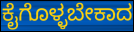
ಕೈಗೊಳ್ಳಬೇಕಾದ